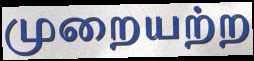
முறையற்ற